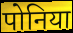
पोनिया